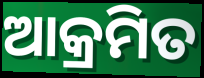
ଆକ୍ରମିତ